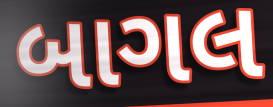
બાગલ